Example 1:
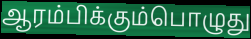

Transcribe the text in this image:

ஆரம்பிக்கும்பொழுது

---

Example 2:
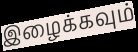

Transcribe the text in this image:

இழைக்கவும்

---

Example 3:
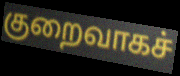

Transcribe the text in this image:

குறைவாகச்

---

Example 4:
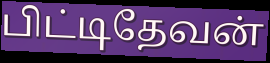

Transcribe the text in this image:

பிட்டிதேவன்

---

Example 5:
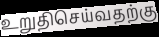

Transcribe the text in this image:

உறுதிசெய்வதற்கு